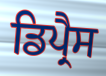
ਡਿਪ੍ਰੈਸ